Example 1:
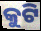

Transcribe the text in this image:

କୁଟି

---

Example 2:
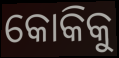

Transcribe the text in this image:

କୋକିକୁ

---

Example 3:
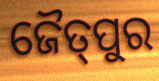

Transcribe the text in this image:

ଜୈତ୍‌ପୁର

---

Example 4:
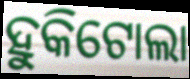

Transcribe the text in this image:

ହୁକିଟୋଲା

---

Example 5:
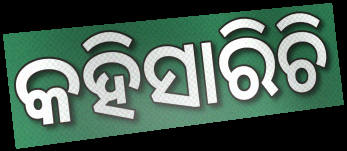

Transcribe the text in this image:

କହିସାରିଚି